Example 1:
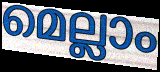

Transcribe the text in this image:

മെല്ലാം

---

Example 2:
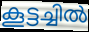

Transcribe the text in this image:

കൂട്ടച്ചിൽ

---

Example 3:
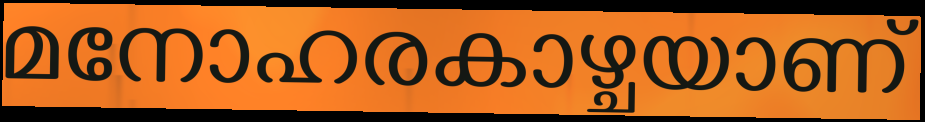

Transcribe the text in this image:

മനോഹരകാഴ്ചയാണ്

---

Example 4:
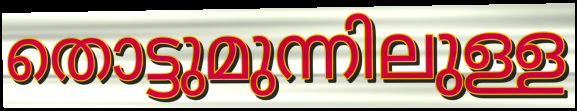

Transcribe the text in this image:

തൊട്ടുമുന്നിലുള്ള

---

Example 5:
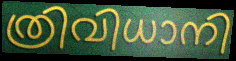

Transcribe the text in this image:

ത്രിവിധാനി